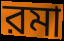
রমা